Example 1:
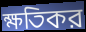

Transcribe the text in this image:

ক্ষতিকর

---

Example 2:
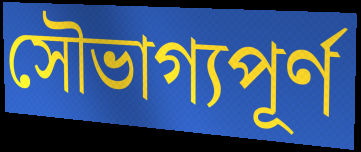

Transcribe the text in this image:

সৌভাগ্যপূর্ণ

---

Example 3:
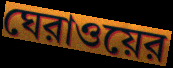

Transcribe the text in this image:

ঘেরাওয়ের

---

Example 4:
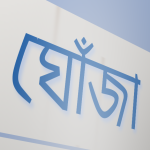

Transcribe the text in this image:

ঘোঁজা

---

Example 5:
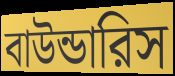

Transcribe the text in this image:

বাউন্ডারিস